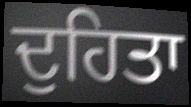
ਦੁਹਿਤਾ